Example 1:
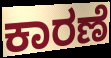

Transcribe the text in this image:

ಕಾರಣೆ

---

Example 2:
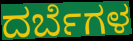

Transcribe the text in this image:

ದರ್ಬೆಗಳ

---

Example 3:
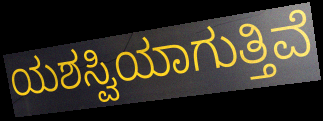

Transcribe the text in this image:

ಯಶಸ್ವಿಯಾಗುತ್ತಿವೆ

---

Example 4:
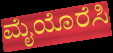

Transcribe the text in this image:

ಮೈಯೊರೆಸಿ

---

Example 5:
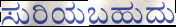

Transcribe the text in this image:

ಸುರಿಯಬಹುದು